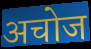
अचोज